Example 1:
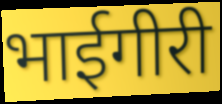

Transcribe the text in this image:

भाईगीरी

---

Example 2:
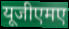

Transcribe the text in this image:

यूजीएमए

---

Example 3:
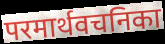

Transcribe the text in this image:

परमार्थवचनिका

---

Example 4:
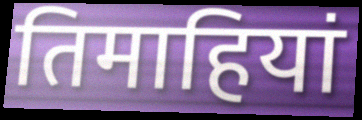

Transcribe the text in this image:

तिमाहियां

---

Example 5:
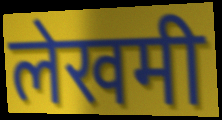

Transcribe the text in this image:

लेखमी